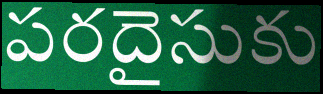
పరదైసుకు